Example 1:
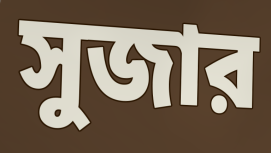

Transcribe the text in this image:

সুজার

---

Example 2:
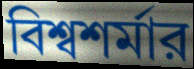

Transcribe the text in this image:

বিশ্বশর্মার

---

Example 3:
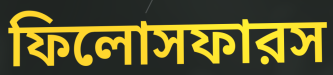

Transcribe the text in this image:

ফিলোসফারস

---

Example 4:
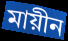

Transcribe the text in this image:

মায়ীন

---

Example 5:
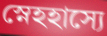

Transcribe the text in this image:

স্নেহহাস্যে